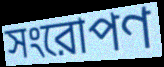
সংরোপণ